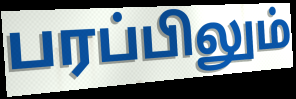
பரப்பிலும்